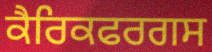
ਕੈਰਿਕਫਰਗਸ